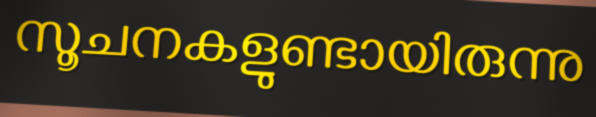
സൂചനകളുണ്ടായിരുന്നു